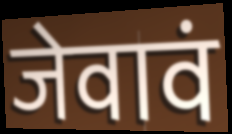
जेवावं